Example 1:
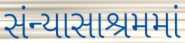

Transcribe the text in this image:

સંન્યાસાશ્રમમાં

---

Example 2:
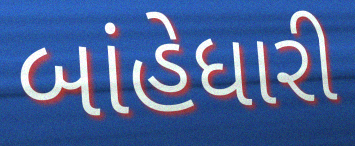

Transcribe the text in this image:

બાંહેધારી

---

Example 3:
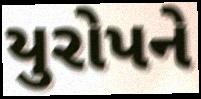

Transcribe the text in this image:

યુરોપને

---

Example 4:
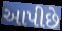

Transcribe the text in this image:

આપીછે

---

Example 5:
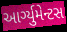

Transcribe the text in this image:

આર્ગ્યુમેન્ટસ